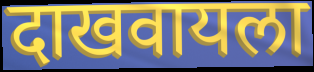
दाखवायला